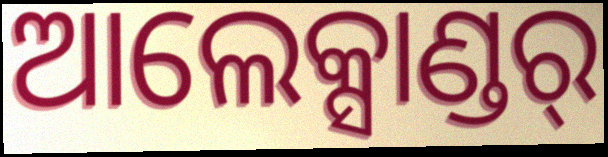
ଆଲେକ୍ସାଣ୍ଡର୍